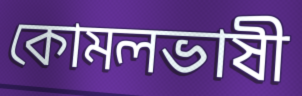
কোমলভাষী